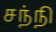
சந்நி